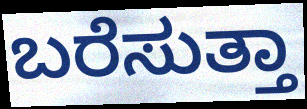
ಬರೆಸುತ್ತಾ